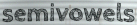
semivowels